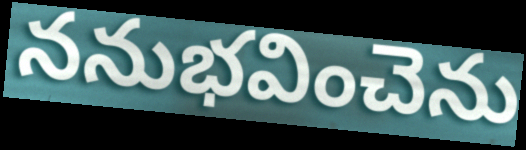
ననుభవించెను